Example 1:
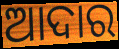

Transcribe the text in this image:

ଆଦାର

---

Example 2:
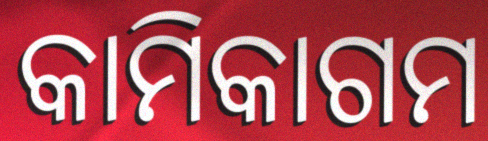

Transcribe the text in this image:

କାମିକାଗମ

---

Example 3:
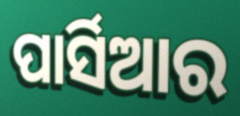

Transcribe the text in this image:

ପାର୍ସିଆର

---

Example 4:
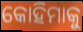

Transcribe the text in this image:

କୋହିମାକୁ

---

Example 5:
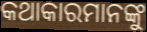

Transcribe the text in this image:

କଥାକାରମାନଙ୍କୁ